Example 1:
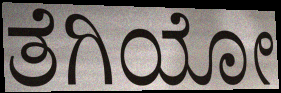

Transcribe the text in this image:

ತೆಗಿಯೋ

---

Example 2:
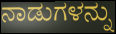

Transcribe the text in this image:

ನಾಡುಗಳನ್ನು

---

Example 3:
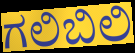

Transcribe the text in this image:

ಗಲಿಬಿಲಿ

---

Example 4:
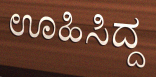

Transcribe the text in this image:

ಊಹಿಸಿದ್ದ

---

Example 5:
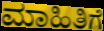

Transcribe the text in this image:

ಮಾಹಿತಿಗೆ